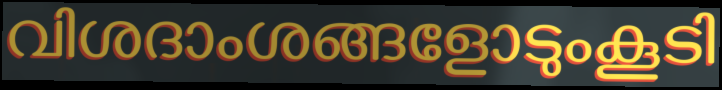
വിശദാംശങ്ങളോടുംകൂടി